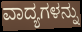
ವಾದ್ಯಗಳನ್ನು